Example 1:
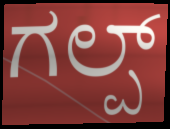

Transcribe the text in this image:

ಗಲ್ಪ್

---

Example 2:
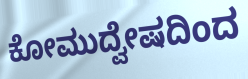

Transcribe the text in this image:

ಕೋಮುದ್ವೇಷದಿಂದ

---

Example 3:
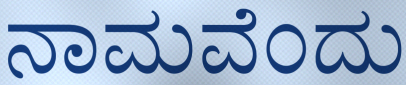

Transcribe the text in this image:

ನಾಮವೆಂದು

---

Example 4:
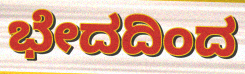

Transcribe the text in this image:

ಭೇದದಿಂದ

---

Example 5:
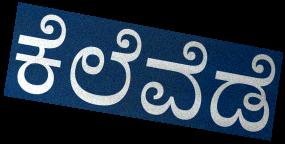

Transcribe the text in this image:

ಕೆಲೆವೆಡೆ